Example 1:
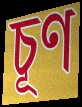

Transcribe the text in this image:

চূণ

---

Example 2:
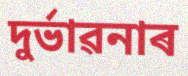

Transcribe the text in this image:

দুৰ্ভাৱনাৰ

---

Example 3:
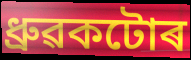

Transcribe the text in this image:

ধ্ৰুৱকটোৰ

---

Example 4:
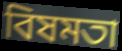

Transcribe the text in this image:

বিষমতা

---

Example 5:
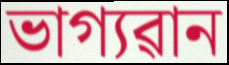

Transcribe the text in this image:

ভাগ্যৱান